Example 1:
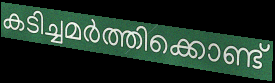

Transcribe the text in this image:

കടിച്ചമർത്തിക്കൊണ്ട്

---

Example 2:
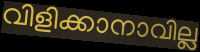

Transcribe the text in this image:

വിളിക്കാനാവില്ല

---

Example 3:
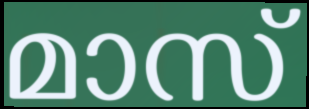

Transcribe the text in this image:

മാസ്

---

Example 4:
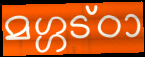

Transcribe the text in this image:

മഗ്ഗട്ഠാ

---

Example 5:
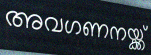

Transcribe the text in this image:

അവഗണനയ്ക്ക്